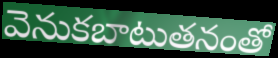
వెనుకబాటుతనంతో